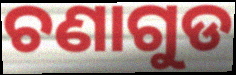
ଚଣାଗୁଡ